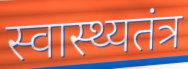
स्वास्थ्यतंत्र